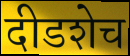
दीडशेच